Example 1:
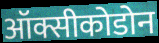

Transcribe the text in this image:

ऑक्सीकोडोन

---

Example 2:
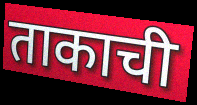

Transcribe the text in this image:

ताकाची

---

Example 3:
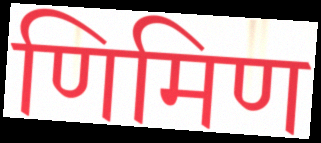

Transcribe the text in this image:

णिमिण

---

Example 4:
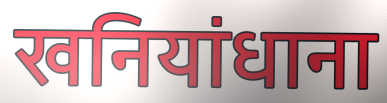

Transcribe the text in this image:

खनियांधाना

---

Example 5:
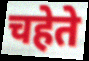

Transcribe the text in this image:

चहेते